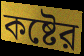
কষ্টের